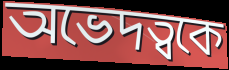
অভেদত্বকে